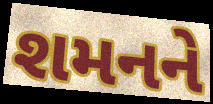
શમનને